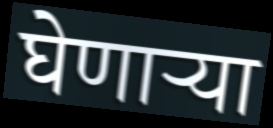
घेणार्‍या